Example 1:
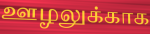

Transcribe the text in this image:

ஊழலுக்காக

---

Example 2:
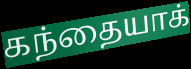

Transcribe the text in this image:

கந்தையாக்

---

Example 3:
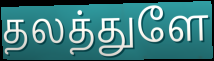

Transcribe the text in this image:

தலத்துளே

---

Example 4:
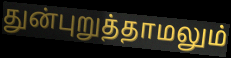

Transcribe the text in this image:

துன்புறுத்தாமலும்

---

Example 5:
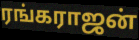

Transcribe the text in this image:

ரங்கராஜன்